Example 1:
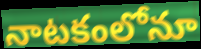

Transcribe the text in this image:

నాటకంలోనూ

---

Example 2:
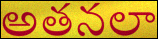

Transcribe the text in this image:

అతనలా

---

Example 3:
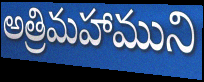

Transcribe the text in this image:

అత్రిమహాముని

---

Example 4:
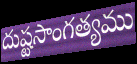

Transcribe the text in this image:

దుష్టసాంగత్యము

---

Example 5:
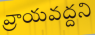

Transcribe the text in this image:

వ్రాయవద్దని